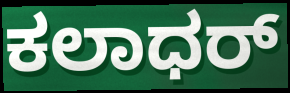
ಕಲಾಧರ್